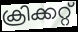
ക്രിക്കറ്റ്